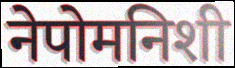
नेपोमनिशी